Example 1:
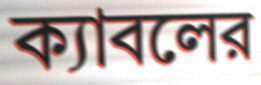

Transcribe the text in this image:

ক্যাবলের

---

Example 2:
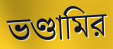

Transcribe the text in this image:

ভণ্ডামির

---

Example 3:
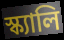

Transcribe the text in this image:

স্ক্যালি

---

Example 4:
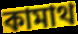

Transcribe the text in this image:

কামাথ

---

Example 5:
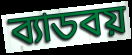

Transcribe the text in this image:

ব্যাডবয়